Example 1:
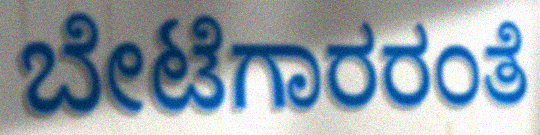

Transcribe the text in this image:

ಬೇಟೆಗಾರರಂತೆ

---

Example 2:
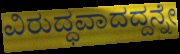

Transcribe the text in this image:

ವಿರುದ್ಧವಾದದ್ದನ್ನೇ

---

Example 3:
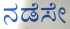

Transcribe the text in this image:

ನಡೆಸೇ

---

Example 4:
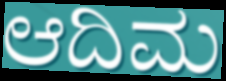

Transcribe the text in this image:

ಆದಿಮ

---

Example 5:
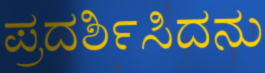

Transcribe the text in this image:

ಪ್ರದರ್ಶಿಸಿದನು